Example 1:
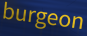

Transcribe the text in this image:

burgeon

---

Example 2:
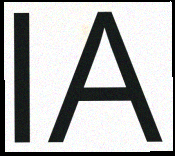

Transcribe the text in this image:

IA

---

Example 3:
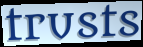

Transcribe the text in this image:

trusts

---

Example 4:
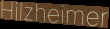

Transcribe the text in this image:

Hilzheimer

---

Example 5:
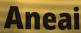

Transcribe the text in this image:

Aneai